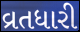
વ્રતધારી